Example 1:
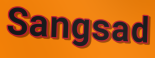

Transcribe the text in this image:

Sangsad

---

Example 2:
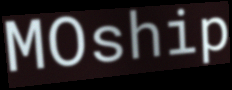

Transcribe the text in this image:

MOship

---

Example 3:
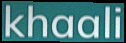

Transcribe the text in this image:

khaali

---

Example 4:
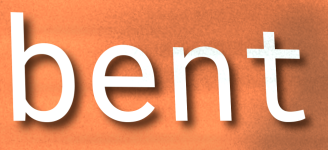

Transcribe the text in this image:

bent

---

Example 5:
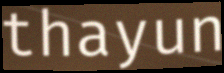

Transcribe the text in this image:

thayun